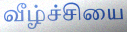
வீழ்ச்சியை